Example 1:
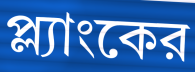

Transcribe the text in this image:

প্ল্যাংকের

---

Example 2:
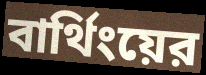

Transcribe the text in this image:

বার্থিংয়ের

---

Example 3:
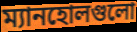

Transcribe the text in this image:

ম্যানহোলগুলো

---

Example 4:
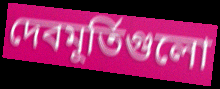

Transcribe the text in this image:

দেবমূর্তিগুলো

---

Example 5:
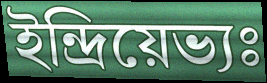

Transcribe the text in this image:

ইন্দ্রিয়েভ্যঃ